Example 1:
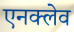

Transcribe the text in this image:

एनक्लेव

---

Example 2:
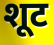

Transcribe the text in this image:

शूट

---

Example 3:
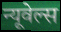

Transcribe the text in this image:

न्यूवेल्स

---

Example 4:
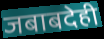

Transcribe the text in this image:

जबाबदेही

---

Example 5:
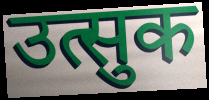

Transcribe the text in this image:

उत्‍सुक